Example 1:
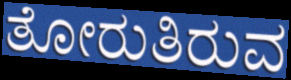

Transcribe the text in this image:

ತೋರುತಿರುವ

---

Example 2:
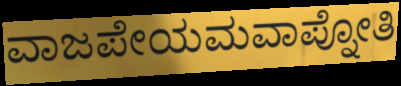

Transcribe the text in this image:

ವಾಜಪೇಯಮವಾಪ್ನೋತಿ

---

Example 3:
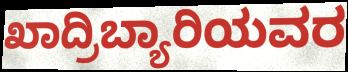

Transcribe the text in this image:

ಖಾದ್ರಿಬ್ಯಾರಿಯವರ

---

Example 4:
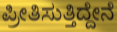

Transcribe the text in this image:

ಪ್ರೀತಿಸುತ್ತಿದ್ದೇನೆ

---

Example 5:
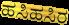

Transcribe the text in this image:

ಹಸಿಹಸಿರ